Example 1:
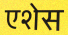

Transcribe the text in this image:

एशेस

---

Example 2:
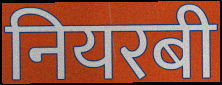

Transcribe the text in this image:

नियरबी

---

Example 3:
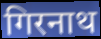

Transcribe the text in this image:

गिरनाथ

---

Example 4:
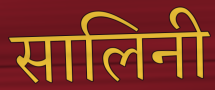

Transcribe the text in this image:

सालिनी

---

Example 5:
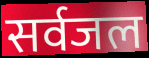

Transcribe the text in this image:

सर्वजल